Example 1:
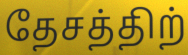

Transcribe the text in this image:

தேசத்திற்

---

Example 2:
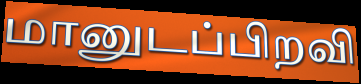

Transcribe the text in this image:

மானுடப்பிறவி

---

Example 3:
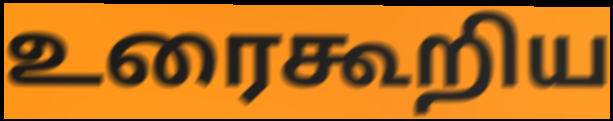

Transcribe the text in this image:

உரைகூறிய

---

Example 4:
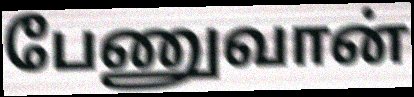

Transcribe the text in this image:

பேணுவான்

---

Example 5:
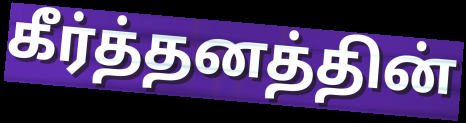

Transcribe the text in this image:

கீர்த்தனத்தின்